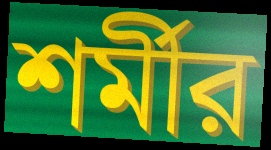
শর্মীর